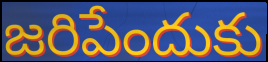
జరిపేందుకు